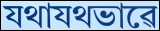
যথাযথভাৱে